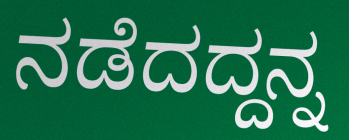
ನಡೆದದ್ದನ್ನ